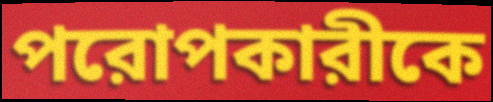
পরোপকারীকে